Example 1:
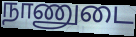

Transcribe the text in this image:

நாணுடை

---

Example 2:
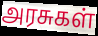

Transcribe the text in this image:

அரசுகள்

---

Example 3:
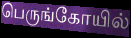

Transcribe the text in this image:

பெருங்கோயில்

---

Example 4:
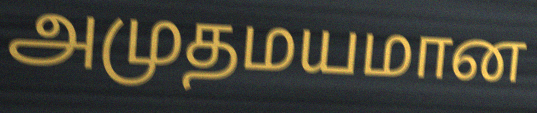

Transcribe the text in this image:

அமுதமயமான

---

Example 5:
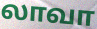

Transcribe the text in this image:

லாவா